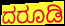
ದರೂಡಿ